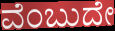
ವೆಂಬುದೇ